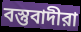
বস্তুবাদীরা